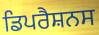
ਡਿਪਰੈਸ਼ਨਸ